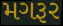
મગરૂર